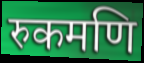
रुकमणि